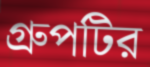
গ্রুপটির